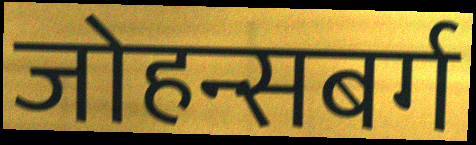
जोहन्सबर्ग